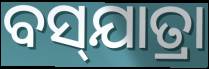
ବସ୍‌ଯାତ୍ରା